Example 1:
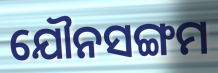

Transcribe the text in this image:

ଯୌନସଙ୍ଗମ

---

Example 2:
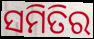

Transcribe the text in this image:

ସମିତିର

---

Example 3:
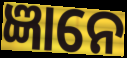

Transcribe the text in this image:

ଜ୍ଞାନେ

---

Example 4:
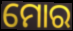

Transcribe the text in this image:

ମୋର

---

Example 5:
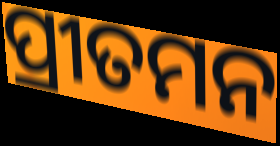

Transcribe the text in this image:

ପ୍ରୀତମନ